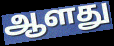
ஆளது